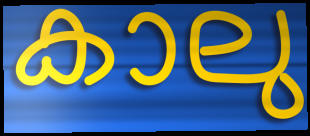
കാലു